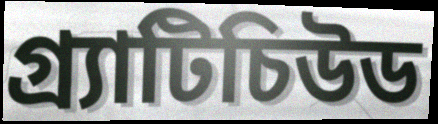
গ্র্যাটিচিউড